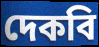
দেকবি